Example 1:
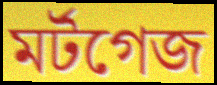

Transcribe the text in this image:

মর্টগেজ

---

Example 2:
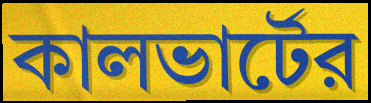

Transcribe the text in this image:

কালভার্টের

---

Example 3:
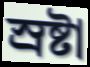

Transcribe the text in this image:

স্রষ্টা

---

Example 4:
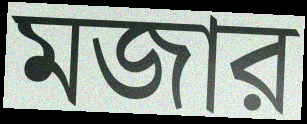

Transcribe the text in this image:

মজার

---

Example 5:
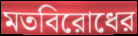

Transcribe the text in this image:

মতবিরোধের